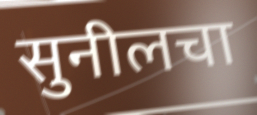
सुनीलचा